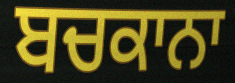
ਬਚਕਾਨਾ